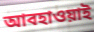
আবহাওয়াই